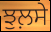
ਝੁਲ਼ਸੇ